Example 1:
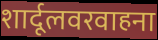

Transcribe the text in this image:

शार्दूलवरवाहना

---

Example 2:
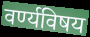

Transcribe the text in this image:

वर्ण्यविषय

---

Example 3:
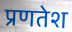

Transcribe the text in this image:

प्रणतेश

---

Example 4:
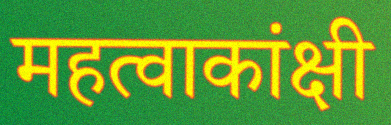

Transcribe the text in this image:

महत्वाकांक्षी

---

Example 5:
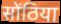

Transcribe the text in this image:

सोंठिया